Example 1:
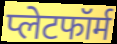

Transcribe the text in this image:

प्‍लेटफॉर्म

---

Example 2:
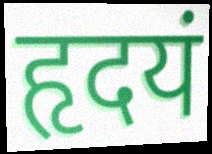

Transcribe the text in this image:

हृदयं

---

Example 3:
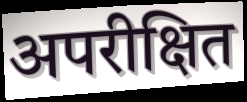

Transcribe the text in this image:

अपरीक्षित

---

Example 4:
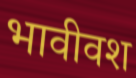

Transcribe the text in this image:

भावीवश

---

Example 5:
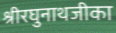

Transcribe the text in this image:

श्रीरघुनाथजीका